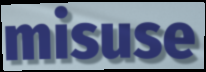
misuse